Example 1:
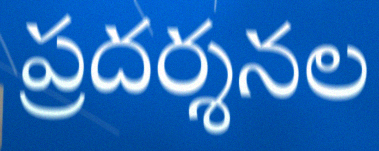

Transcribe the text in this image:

ప్రదర్శనల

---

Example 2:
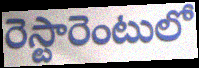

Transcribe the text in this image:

రెస్టారెంటులో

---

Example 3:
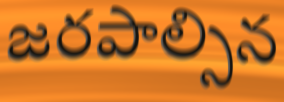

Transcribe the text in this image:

జరపాల్సిన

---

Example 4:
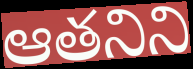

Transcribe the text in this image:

ఆతనిని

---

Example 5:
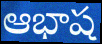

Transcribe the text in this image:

ఆభాష